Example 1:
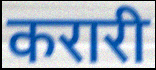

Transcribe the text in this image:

करारी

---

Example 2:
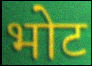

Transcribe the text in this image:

भोट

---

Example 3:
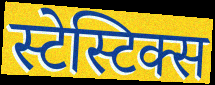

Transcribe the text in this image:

स्टेस्टिक्स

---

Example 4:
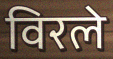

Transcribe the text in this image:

विरले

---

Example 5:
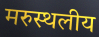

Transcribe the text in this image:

मरुस्थलीय